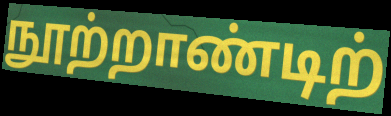
நூற்றாண்டிற்